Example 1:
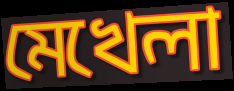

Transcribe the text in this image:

মেখেলা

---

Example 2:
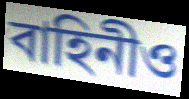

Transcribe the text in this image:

বাহিনীও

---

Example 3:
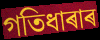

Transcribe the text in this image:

গতিধাৰাৰ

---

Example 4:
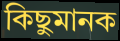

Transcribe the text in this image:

কিছুমানক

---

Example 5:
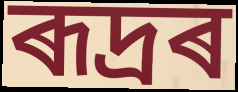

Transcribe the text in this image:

ৰূদ্ৰৰ